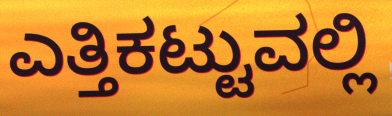
ಎತ್ತಿಕಟ್ಟುವಲ್ಲಿ